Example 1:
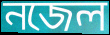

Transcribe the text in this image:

নজেল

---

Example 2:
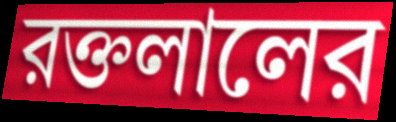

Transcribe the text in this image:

রক্তলালের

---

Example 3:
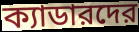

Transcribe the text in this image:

ক্যাডারদের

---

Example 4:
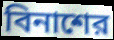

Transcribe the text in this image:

বিনাশের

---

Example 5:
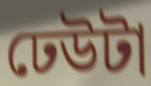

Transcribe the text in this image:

ঢেউটা